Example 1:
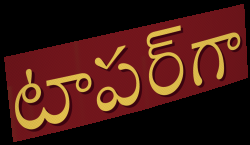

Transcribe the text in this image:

టాపర్‌గా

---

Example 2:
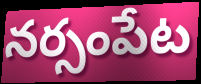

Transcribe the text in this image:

నర్సంపేట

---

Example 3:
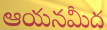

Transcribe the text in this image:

ఆయనమీద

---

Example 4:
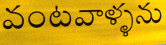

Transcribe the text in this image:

వంటవాళ్ళను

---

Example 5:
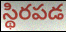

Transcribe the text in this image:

స్థిరపడ